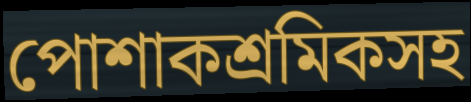
পোশাকশ্রমিকসহ